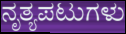
ನೃತ್ಯಪಟುಗಳು